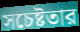
সচেষ্টতার